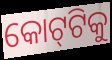
କୋଟ୍‌ଟିକୁ